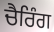
ਚੈਰਿੰਗ